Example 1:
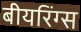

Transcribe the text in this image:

बीयरिंग्स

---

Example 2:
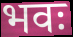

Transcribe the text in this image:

भवः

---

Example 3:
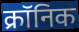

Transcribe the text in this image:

क्रॉनिक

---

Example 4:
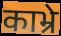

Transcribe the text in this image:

काभ्रे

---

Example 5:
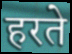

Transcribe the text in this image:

हरते